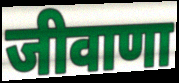
जीवाणा